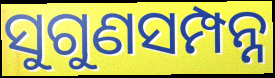
ସୁଗୁଣସମ୍ପନ୍ନ